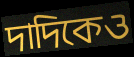
দাদিকেও